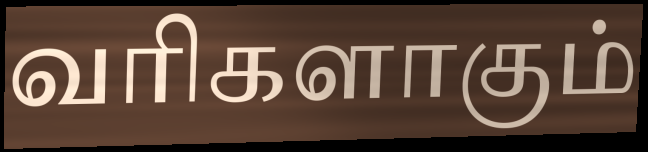
வரிகளாகும்